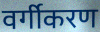
वर्गीकरण